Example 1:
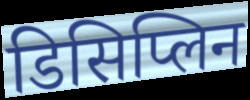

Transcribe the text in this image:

डिसिप्लिन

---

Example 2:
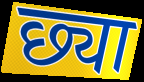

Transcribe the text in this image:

छ्या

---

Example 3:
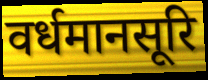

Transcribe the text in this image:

वर्धमानसूरि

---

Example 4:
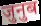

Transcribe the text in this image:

जुनुब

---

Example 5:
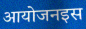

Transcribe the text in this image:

आयोजनइस